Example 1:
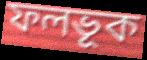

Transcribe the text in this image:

ফলভূক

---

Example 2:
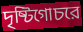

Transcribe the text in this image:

দৃষ্টিগোচরে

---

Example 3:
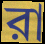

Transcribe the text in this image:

রা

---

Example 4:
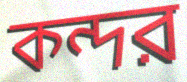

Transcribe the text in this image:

কন্দর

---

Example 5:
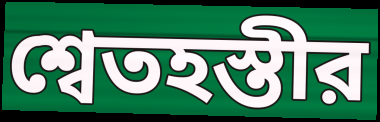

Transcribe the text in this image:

শ্বেতহস্তীর